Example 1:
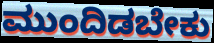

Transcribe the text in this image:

ಮುಂದಿಡಬೇಕು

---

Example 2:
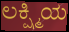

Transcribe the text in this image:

ಲಕ್ಷ್ಮಿಯ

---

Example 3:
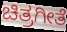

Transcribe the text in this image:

ಚಿತ್ರಗೀತೆ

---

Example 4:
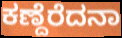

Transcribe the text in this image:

ಕಣ್ದೆರೆದನಾ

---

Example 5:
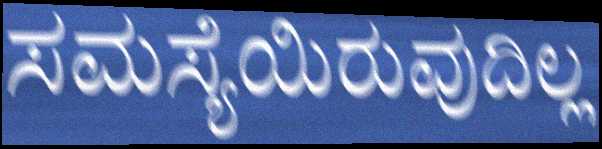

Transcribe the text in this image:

ಸಮಸ್ಯೆಯಿರುವುದಿಲ್ಲ